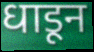
धाडून